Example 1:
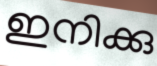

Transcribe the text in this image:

ഇനിക്കു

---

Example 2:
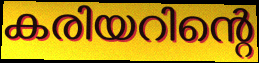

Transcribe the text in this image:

കരിയറിന്റെ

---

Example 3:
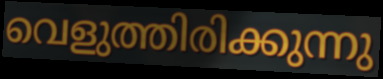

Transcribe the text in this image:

വെളുത്തിരിക്കുന്നു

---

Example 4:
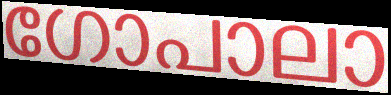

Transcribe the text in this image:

ഗോപാലാ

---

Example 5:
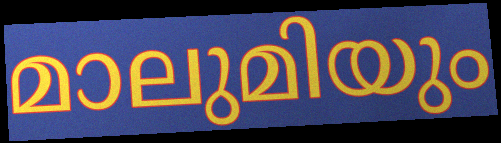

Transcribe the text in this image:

മാലുമിയും